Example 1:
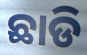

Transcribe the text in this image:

ଛାଡି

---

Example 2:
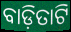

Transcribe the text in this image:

ବାଡ଼ିତାଟି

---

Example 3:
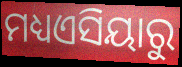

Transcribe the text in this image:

ମଧ୍ୟଏସିୟାରୁ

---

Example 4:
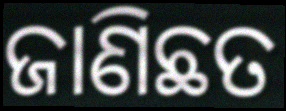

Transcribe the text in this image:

ଜାଣିଛତ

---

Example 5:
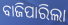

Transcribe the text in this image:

ବାଜିପାରିଲା